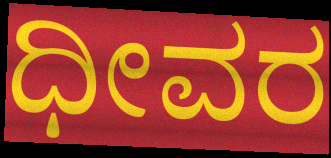
ಧೀವರ